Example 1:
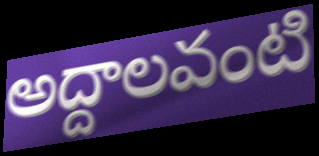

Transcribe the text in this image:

అద్దాలవంటి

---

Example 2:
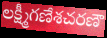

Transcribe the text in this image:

లక్ష్మీగణేశచరణౌ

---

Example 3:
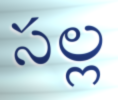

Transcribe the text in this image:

సల్ల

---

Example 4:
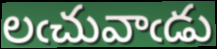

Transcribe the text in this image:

లఁచువాఁడు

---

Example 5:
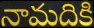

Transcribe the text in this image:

నామదికి